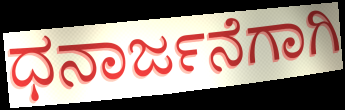
ಧನಾರ್ಜನೆಗಾಗಿ